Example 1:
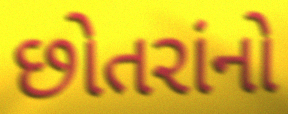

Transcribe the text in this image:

છોતરાંનો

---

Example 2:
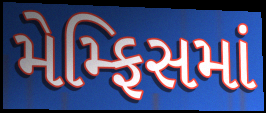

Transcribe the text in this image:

મેમ્ફિસમાં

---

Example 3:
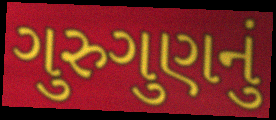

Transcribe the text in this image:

ગુરુગુણનું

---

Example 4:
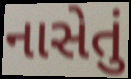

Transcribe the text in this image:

નાસેતું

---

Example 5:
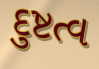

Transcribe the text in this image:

દુષ્ટત્વ